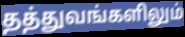
தத்துவங்களிலும்